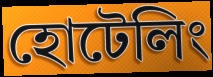
হোটেলিং